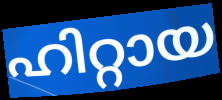
ഹിറ്റായ